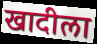
खादीला